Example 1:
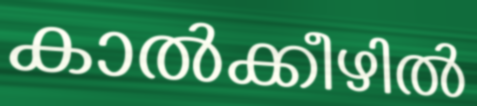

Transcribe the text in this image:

കാൽക്കീഴിൽ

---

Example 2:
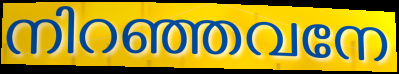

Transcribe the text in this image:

നിറഞ്ഞവനേ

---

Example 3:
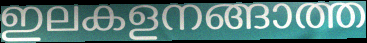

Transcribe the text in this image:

ഇലകളനങ്ങാത്ത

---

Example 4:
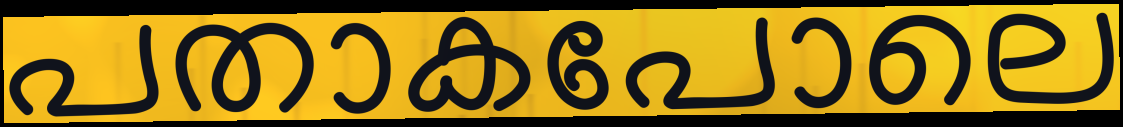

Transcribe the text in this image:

പതാകപോലെ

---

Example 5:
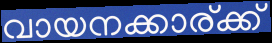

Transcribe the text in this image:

വായനക്കാര്ക്ക്